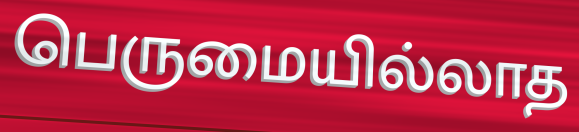
பெருமையில்லாத